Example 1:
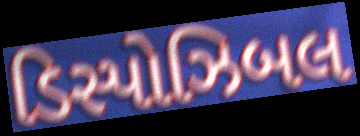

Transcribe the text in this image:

ડિસ્પોઝિબલ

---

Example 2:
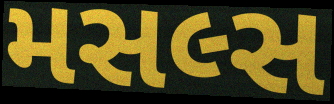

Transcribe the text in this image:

મસલ્સ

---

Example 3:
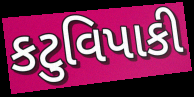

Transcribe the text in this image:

કટુવિપાકી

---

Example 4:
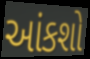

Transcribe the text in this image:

આંકશો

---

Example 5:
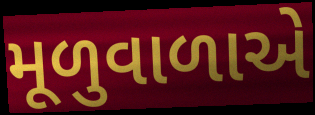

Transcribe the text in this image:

મૂળુવાળાએ